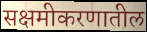
सक्षमीकरणातील